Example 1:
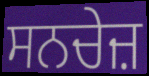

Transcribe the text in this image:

ਸਨਚੇਜ਼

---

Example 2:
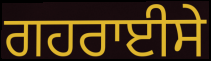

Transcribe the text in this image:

ਗਹਰਾਈਸੇ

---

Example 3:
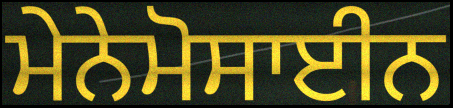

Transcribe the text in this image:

ਮੇਨੇਮੋਸਾਈਨ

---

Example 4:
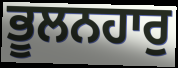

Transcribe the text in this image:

ਭੂਲਨਹਾਰੁ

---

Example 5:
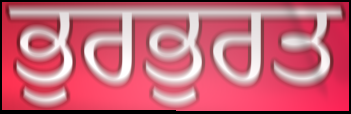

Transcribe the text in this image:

ਭੁਰਭੁਰਤ